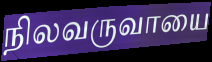
நிலவருவாயை